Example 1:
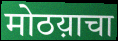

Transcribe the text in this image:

मोठय़ाचा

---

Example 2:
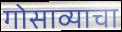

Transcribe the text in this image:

गोसाव्याचा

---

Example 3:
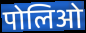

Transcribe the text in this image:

पोलिओ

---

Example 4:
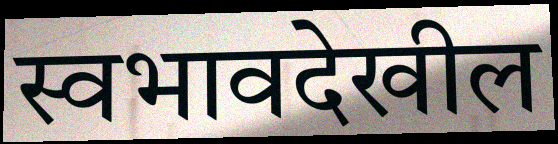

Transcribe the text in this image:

स्वभावदेखील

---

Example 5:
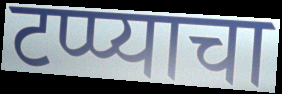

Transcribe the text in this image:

टप्प्याचा